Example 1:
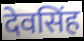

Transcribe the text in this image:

देवसिंह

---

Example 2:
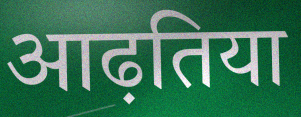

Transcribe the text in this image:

आढ़तिया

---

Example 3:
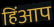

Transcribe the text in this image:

हिंआप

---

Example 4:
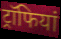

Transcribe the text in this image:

ट्रॉफियां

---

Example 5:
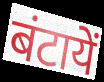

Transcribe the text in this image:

बंटायें